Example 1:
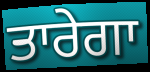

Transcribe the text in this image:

ਤਾਰੇਗਾ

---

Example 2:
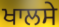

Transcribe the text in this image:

ਖਾਲਸੇ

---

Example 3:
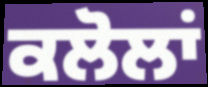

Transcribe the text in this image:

ਕਲੋਲਾਂ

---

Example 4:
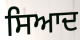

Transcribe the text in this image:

ਸਿਆਦ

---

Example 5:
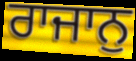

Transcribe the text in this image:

ਰਾਜਾਨੁ